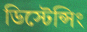
ডিস্টেন্সিং